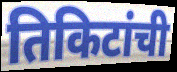
तिकिटांची